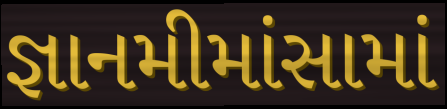
જ્ઞાનમીમાંસામાં